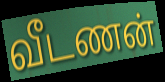
வீடணன்